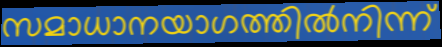
സമാധാനയാഗത്തിൽനിന്ന്